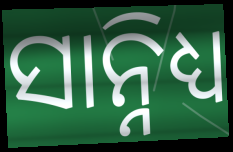
ସାନ୍ନିଧ୍ୟ